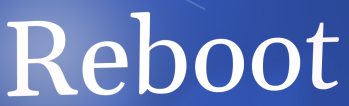
Reboot